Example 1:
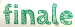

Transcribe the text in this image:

finale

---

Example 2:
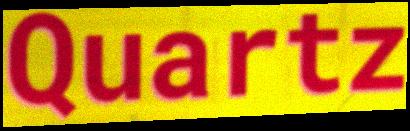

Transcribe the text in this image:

Quartz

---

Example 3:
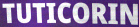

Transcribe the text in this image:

TUTICORIN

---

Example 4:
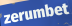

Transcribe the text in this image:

zerumbet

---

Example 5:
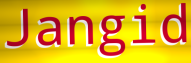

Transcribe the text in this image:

Jangid